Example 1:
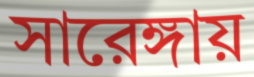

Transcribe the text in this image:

সারেঙ্গায়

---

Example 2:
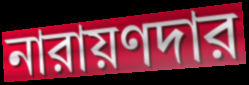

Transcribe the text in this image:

নারায়ণদার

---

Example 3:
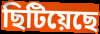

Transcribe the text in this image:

ছিটিয়েছে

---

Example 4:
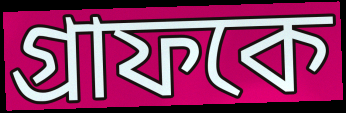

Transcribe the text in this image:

গ্রাফকে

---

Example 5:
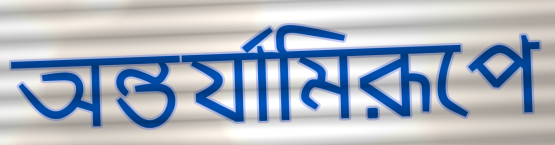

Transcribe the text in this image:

অন্তর্যামিরূপে